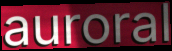
auroral